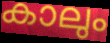
കാലും